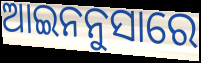
ଆଇନନୁସାରେ